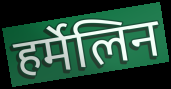
हर्मेलिन